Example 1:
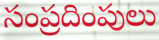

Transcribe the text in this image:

సంప్రదింపులు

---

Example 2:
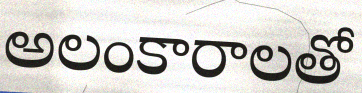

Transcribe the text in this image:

అలంకారాలతో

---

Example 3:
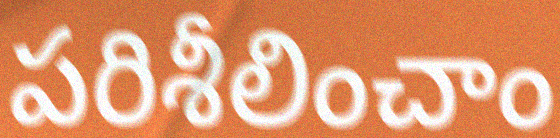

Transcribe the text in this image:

పరిశీలించాం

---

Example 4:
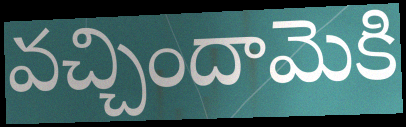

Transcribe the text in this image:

వచ్చిందామెకి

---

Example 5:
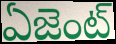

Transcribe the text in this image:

ఏజెంట్